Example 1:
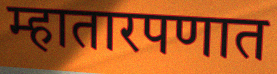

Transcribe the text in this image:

म्हातारपणात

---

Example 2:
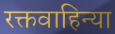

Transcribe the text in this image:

रक्तवाहिन्या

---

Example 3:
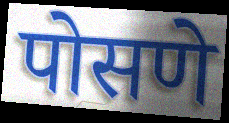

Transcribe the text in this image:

पोसणे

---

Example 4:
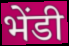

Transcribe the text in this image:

भेंडी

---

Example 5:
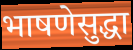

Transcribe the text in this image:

भाषणेसुद्धा